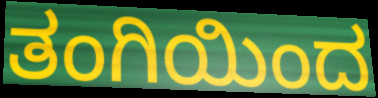
ತಂಗಿಯಿಂದ